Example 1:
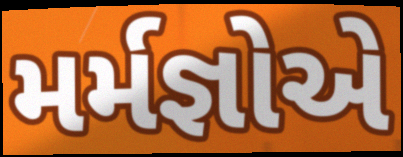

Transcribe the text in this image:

મર્મજ્ઞોએ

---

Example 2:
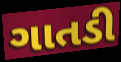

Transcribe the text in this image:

ગાતડી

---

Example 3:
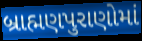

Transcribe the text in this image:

બ્રાહ્મણપુરાણોમાં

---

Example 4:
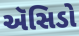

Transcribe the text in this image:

ઍસિડો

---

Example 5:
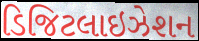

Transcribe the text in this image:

ડિજિટલાઇઝેશન